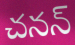
చనన్